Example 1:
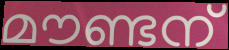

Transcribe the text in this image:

മൗണ്ടന്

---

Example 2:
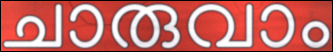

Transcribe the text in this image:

ചാരുവാം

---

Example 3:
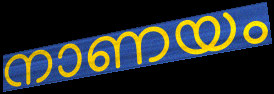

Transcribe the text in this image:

നാണയം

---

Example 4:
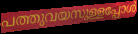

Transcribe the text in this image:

പത്തുവയസുള്ളപ്പോൾ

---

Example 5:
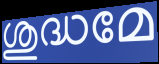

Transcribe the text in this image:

ശുദ്ധമേ